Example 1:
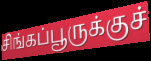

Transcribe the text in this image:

சிங்கப்பூருக்குச்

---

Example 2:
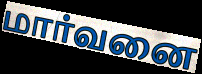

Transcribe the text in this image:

மார்வனை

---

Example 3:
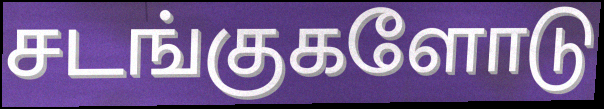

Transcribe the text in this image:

சடங்குகளோடு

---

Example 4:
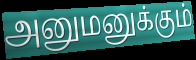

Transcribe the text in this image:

அனுமனுக்கும்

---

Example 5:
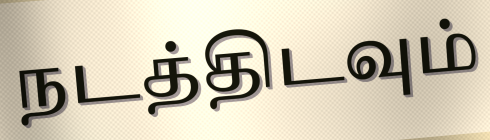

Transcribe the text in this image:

நடத்திடவும்